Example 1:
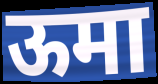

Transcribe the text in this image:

ऊमा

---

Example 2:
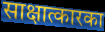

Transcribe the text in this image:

साक्षात्कारका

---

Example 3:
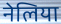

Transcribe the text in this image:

नेलिया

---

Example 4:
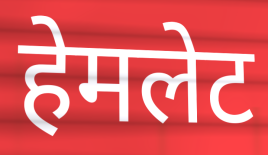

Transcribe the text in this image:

हेमलेट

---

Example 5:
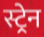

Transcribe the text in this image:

स्ट्रेन